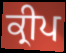
ਕ੍ਰੀਪ